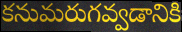
కనుమరుగవ్వడానికి